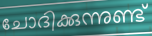
ചോദിക്കുന്നുണ്ട്